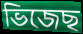
ভিজেছ